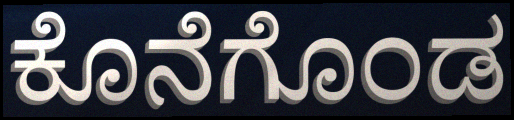
ಕೊನೆಗೊಂಡ